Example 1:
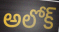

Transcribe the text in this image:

అలోక్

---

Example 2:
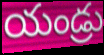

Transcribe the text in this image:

యండ్రు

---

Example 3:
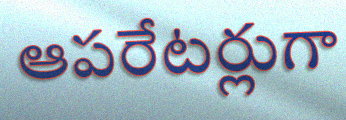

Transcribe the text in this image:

ఆపరేటర్లుగా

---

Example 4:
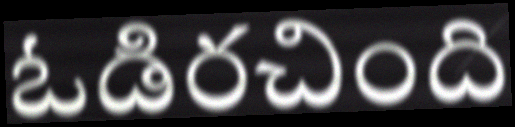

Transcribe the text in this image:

ఓడిరచింది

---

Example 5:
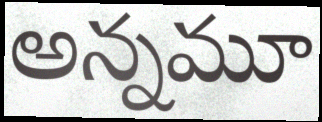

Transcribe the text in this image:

అన్నమూ